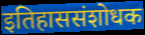
इतिहाससंशोधक